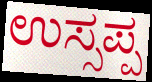
ಉಸ್ಸಪ್ಪ